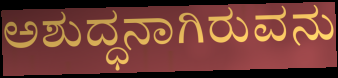
ಅಶುದ್ಧನಾಗಿರುವನು